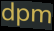
dpm